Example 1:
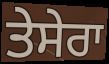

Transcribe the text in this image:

ਤੇਸੇਰਾ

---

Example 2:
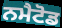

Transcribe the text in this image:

ਨਮੈਟੋਡ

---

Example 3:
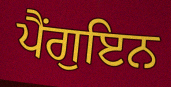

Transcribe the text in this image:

ਪੈਂਗੁਇਨ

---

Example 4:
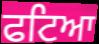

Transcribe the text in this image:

ਫਟਿਆ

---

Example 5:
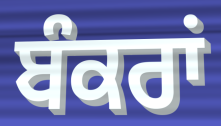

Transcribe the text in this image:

ਬੰਕਰਾਂ